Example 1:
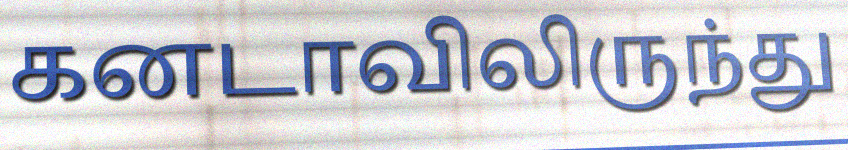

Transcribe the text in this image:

கனடாவிலிருந்து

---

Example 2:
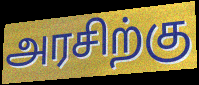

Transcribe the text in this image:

அரசிற்கு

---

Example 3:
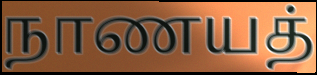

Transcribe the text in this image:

நாணயத்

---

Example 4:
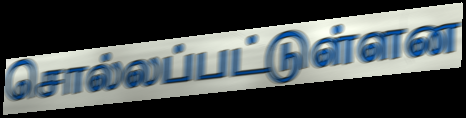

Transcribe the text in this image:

சொல்லப்பட்டுள்ளன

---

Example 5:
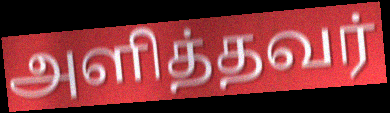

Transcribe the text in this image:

அளித்தவர்